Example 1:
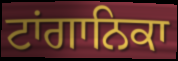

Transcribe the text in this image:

ਟਾਂਗਾਨਿਕਾ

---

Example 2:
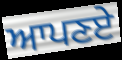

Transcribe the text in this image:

ਆਪਣਏ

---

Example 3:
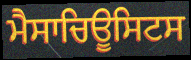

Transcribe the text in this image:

ਮੈਸਾਚਿਊਸਿਟਸ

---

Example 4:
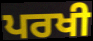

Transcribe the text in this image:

ਪਰਖੀ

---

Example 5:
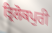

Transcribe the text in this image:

ਤ੍ਰਿਲੋਕਪੁਰੀ